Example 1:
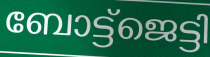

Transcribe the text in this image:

ബോട്ട്ജെട്ടി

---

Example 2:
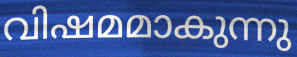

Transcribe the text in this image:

വിഷമമാകുന്നു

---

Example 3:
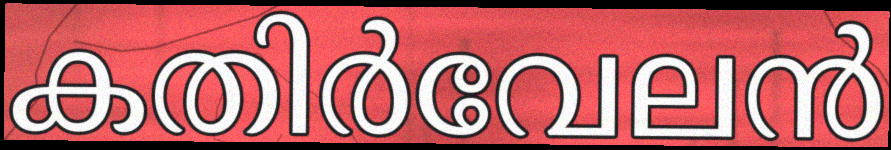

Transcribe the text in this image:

കതിർവേലൻ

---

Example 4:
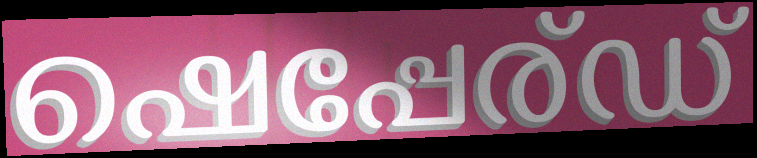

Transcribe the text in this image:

ഷെപ്പേര്ഡ്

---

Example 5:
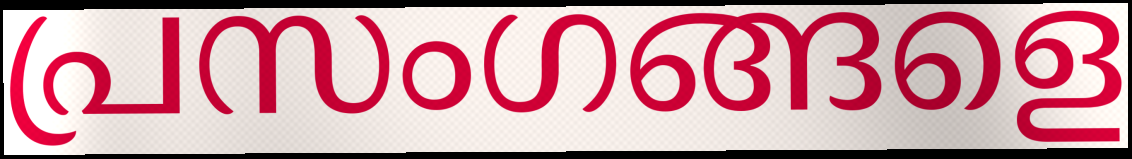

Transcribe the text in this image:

പ്രസംഗങ്ങളെ